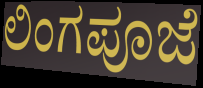
ಲಿಂಗಪೂಜೆ